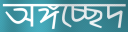
অঙ্গচ্ছেদ